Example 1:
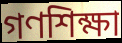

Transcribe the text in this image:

গণশিক্ষা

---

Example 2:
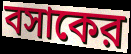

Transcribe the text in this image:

বসাকের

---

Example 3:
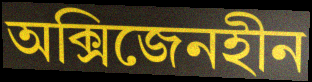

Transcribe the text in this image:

অক্সিজেনহীন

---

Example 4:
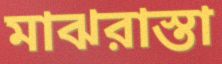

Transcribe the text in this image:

মাঝরাস্তা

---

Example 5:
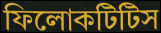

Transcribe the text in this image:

ফিলোকটিটিস